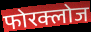
फोरक्लोज